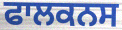
ਫਾਲਕਨਸ